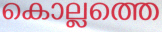
കൊല്ലത്തെ